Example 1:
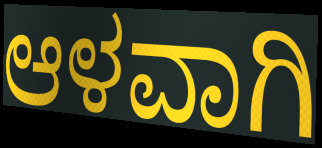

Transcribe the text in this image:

ಆಳವಾಗಿ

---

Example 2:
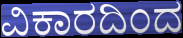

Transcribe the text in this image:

ವಿಕಾರದಿಂದ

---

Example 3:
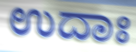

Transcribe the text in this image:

ಉದಾಃ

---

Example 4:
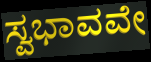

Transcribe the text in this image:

ಸ್ವಭಾವವೇ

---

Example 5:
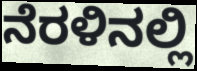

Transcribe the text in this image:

ನೆರಳಿನಲ್ಲಿ